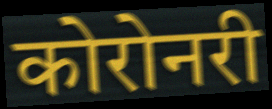
कोरोनरी